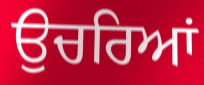
ਉਚਰਿਆਂ